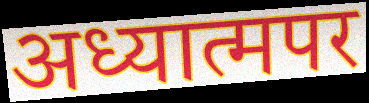
अध्यात्मपर